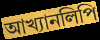
আখ্যানলিপি